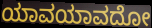
ಯಾವಯಾವದೋ